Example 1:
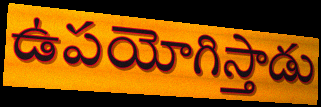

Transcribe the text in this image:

ఉపయోగిస్తాడు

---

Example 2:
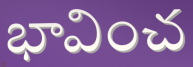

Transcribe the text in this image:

భావించ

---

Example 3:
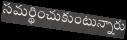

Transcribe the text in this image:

సమర్థించుకుంటున్నారు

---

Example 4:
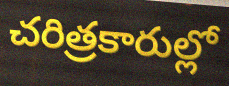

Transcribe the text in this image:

చరిత్రకారుల్లో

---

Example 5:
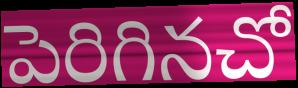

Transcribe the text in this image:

పెరిగినచో